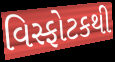
વિસ્ફોટકથી